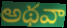
అథవా